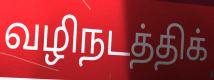
வழிநடத்திக்